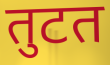
तुटत